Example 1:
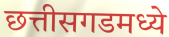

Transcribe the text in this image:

छत्तीसगडमध्ये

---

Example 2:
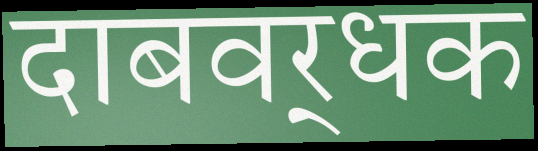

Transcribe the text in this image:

दाबवर्धक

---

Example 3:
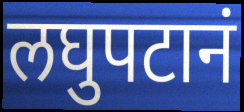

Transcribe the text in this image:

लघुपटानं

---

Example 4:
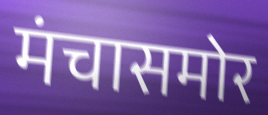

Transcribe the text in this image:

मंचासमोर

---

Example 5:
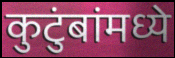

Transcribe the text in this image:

कुटुंबांमध्ये